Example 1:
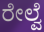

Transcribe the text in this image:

ರೇಲ್ವೆ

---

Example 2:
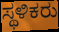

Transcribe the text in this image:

ಸ್ಥಳಿಕರು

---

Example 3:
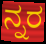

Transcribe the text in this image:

ನ್ನರ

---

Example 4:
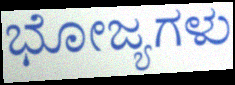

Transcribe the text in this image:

ಭೋಜ್ಯಗಳು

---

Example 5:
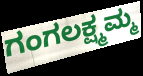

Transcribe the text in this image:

ಗಂಗಲಕ್ಷ್ಮಮ್ಮ